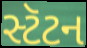
સ્ટૅટન